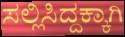
ಸಲ್ಲಿಸಿದ್ದಕ್ಕಾಗಿ